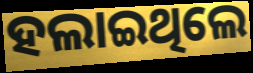
ହଲାଇଥିଲେ